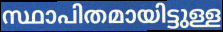
സ്ഥാപിതമായിട്ടുള്ള